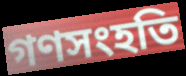
গণসংহতি